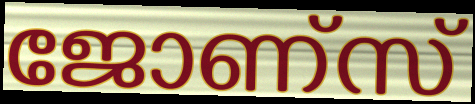
ജോണ്സ്